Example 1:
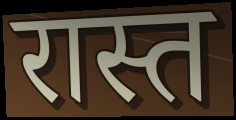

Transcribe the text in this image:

रास्त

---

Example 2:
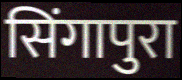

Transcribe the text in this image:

सिंगापुरा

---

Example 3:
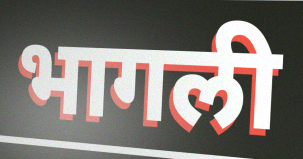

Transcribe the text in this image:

भागली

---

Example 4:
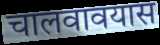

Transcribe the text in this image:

चालवावयास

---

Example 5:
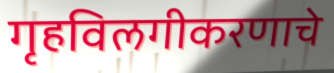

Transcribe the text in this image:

गृहविलगीकरणाचे